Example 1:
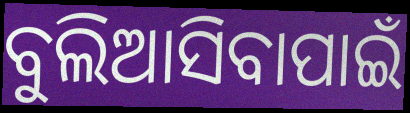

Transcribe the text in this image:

ବୁଲିଆସିବାପାଇଁ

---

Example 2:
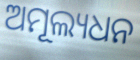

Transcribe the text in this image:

ଅମୂଲ୍ୟଧନ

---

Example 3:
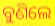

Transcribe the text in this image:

ବୁଣିଲେ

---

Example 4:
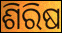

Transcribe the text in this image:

ଶିରିଷ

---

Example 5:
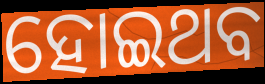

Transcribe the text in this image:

ହୋଇଥବ